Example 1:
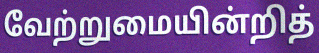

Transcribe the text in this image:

வேற்றுமையின்றித்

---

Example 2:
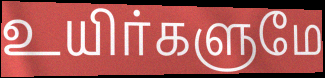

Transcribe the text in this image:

உயிர்களுமே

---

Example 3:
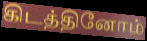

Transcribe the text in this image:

கிடத்தினோம்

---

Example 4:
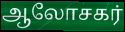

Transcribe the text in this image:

ஆலோசகர்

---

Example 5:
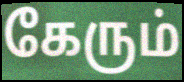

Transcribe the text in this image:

கேரும்